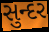
સુન્દર